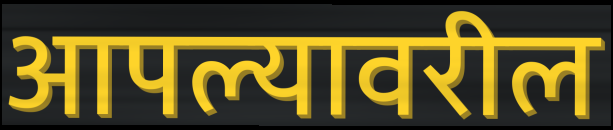
आपल्यावरील